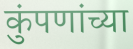
कुंपणांच्या